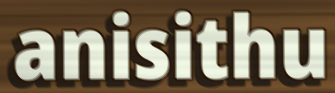
anisithu